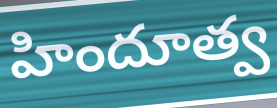
హిందూత్వ